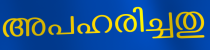
അപഹരിച്ചതു